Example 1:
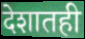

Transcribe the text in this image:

देशातही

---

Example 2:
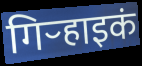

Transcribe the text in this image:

गिऱ्हाइकं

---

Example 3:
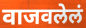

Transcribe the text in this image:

वाजवलेलं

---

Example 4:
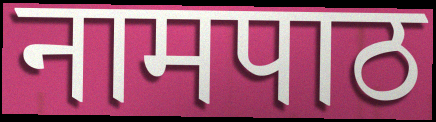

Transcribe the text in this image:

नामपाठ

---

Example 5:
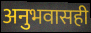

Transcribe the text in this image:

अनुभवासही